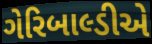
ગેરિબાલ્ડીએ